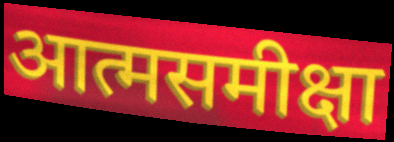
आत्मसमीक्षा